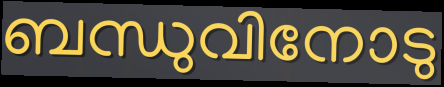
ബന്ധുവിനോടു